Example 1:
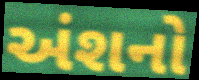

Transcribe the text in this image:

અંશનો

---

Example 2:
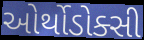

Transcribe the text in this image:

ઓર્થોડોક્સી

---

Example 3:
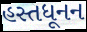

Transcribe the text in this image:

હસ્તધૂનન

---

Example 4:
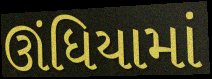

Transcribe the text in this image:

ઊંધિયામાં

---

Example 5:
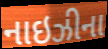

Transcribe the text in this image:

નાઇઝીના